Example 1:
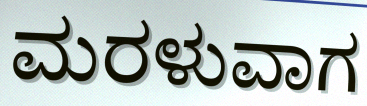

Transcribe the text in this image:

ಮರಳುವಾಗ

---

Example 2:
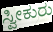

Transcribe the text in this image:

ಸ್ವೀಕುರು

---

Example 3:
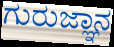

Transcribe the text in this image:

ಗುರುಜ್ಞಾನ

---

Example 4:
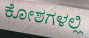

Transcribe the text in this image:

ಕೋಶಗಳಲ್ಲಿ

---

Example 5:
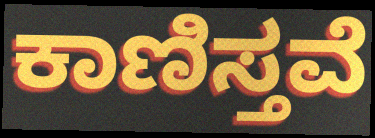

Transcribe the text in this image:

ಕಾಣಿಸ್ತವೆ